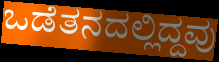
ಒಡೆತನದಲ್ಲಿದ್ದವು